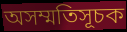
অসম্মতিসূচক